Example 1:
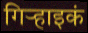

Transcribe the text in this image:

गिऱ्हाइकं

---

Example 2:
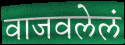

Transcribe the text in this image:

वाजवलेलं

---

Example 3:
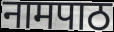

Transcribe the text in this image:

नामपाठ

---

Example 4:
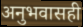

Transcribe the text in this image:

अनुभवासही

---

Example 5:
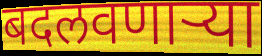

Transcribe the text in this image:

बदलवणार्‍या